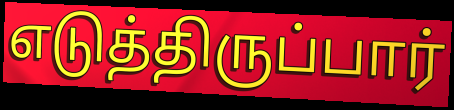
எடுத்திருப்பார்